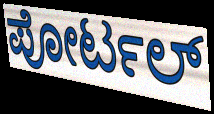
ಪೋರ್ಟಲ್